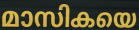
മാസികയെ